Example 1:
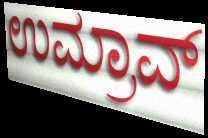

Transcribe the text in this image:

ಉಮ್ರಾವ್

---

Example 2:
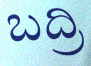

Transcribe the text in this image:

ಬದ್ರಿ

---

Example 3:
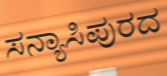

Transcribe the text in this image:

ಸನ್ಯಾಸಿಪುರದ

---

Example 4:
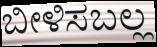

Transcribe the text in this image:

ಬೀಳಿಸಬಲ್ಲ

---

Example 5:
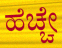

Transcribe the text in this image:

ಹೆಚ್ಚೇ